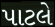
પાટલે